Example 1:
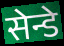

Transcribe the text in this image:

सेन्डे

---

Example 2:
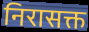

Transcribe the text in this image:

निरासक्त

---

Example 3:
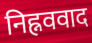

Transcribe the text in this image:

निह्नववाद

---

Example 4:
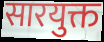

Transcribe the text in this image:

सारयुक्त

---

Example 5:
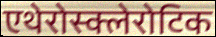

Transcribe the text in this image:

एथेरोस्क्लेरोटिक